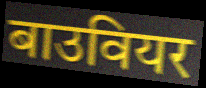
बाउवियर